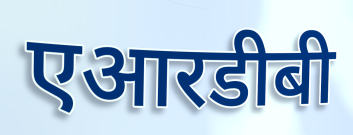
एआरडीबी